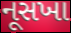
નૂસખા